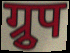
ग्र्रुप